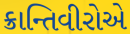
ક્રાન્તિવીરોએ